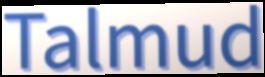
Talmud